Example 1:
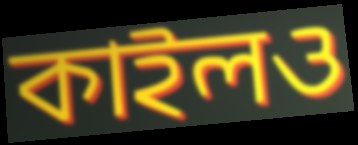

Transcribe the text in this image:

কাইলও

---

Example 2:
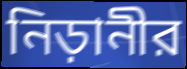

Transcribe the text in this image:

নিড়ানীর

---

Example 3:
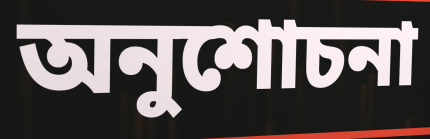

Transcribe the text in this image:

অনুশোচনা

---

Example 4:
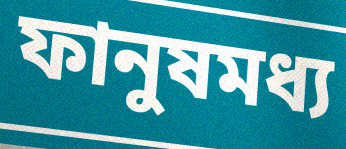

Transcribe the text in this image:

ফানুষমধ্য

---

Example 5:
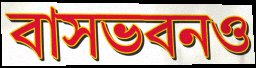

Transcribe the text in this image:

বাসভবনও